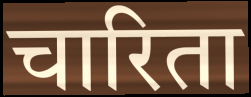
चारिता